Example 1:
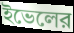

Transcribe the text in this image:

ইভেলের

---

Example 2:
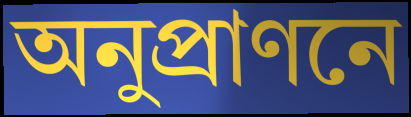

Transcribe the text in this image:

অনুপ্রাণনে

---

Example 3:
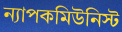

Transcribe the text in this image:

ন্যাপকমিউনিস্ট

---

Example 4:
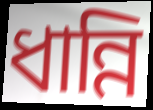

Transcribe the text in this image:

ধান্নি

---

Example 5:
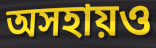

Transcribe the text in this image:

অসহায়ও